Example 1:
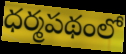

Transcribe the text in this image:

ధర్మపథంలో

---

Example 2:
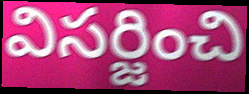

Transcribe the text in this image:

విసర్జించి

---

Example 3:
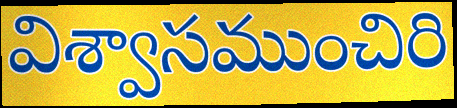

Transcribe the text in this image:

విశ్వాసముంచిరి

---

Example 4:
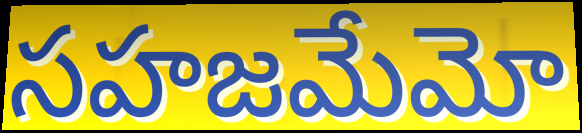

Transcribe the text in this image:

సహజమేమో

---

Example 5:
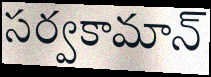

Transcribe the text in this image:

సర్వకామాన్